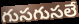
గుసగుసలే